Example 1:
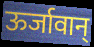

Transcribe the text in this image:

ऊर्जावान्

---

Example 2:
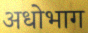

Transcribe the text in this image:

अधोभाग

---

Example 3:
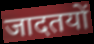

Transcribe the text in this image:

जादतयों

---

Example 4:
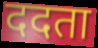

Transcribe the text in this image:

ददता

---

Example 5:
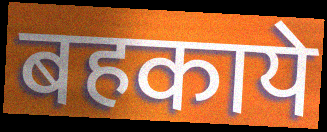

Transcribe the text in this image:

बहकाये